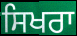
ਸਿਖਰਾ